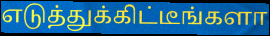
எடுத்துக்கிட்டீங்களா